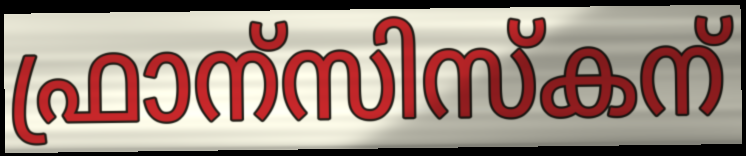
ഫ്രാന്സിസ്കന്